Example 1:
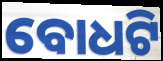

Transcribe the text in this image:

ବୋଧଟି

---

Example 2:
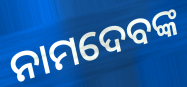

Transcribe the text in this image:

ନାମଦେବଙ୍କ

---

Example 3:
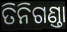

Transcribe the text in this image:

ତିନିଗଣ୍ଡା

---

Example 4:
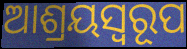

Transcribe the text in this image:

ଆଶ୍ରୟସ୍ୱରୂପ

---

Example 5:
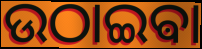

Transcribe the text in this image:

ଉଠାଇଵା